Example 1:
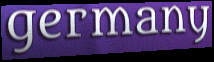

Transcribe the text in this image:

germany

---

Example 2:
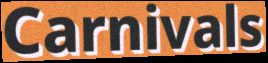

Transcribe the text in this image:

Carnivals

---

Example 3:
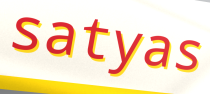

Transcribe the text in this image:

satyas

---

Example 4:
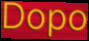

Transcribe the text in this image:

Dopo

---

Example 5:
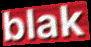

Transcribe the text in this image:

blak